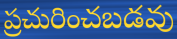
ప్రచురించబడవు